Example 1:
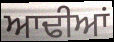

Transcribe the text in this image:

ਆਢੀਆਂ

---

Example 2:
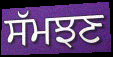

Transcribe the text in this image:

ਸੱਮਝਣ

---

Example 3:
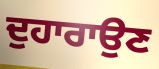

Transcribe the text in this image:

ਦੁਹਾਰਾਉਣ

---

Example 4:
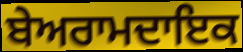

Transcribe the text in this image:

ਬੇਅਰਾਮਦਾਇਕ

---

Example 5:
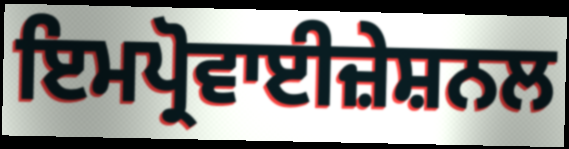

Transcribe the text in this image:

ਇਮਪ੍ਰੋਵਾਈਜ਼ੇਸ਼ਨਲ